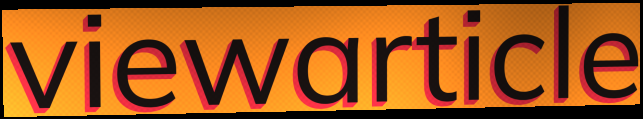
viewarticle